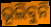
ଭୂଲିବୁନି